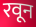
रवून